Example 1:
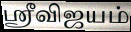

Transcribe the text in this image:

ஸ்ரீவிஜயம்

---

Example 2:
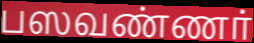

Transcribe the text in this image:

பஸவண்ணர்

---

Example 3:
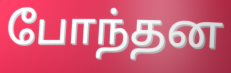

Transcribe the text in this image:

போந்தன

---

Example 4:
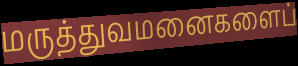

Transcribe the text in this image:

மருத்துவமனைகளைப்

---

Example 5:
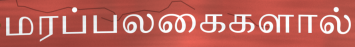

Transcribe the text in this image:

மரப்பலகைகளால்